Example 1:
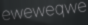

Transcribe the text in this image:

eweweqwe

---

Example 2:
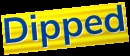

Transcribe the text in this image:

Dipped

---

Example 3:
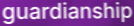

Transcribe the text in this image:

guardianship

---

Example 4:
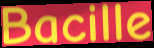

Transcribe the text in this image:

Bacille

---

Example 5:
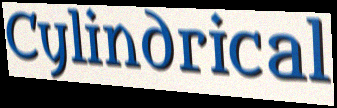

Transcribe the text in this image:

Cylindrical